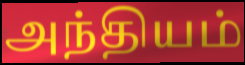
அந்தியம்